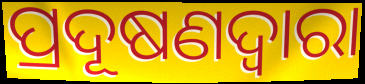
ପ୍ରଦୂଷଣଦ୍ବାରା